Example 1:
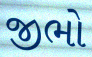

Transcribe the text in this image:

જીભો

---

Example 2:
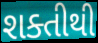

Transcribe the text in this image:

શક્તીથી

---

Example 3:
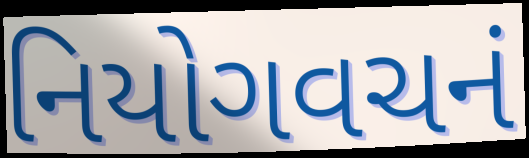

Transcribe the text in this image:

નિયોગવચનં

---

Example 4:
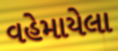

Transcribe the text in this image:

વહેમાયેલા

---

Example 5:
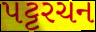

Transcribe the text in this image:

પટ્ટરચન